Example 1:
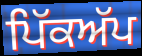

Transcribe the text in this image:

ਪਿੱਕਅੱਪ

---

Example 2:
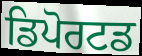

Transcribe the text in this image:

ਡਿਪੋਰਟਡ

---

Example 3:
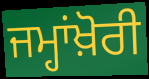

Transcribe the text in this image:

ਜਮ੍ਹਾਂਖ਼ੋਰੀ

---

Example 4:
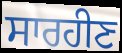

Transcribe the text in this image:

ਸਾਰਹੀਣ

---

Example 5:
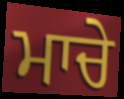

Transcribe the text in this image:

ਮਾਚੇ